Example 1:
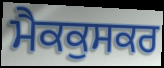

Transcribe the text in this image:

ਮੈਕਕੁਸਕਰ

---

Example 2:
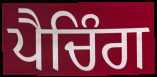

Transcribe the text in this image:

ਪੈਚਿੰਗ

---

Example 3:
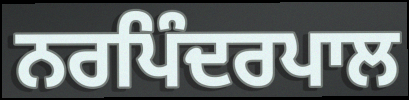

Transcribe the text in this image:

ਨਰਪਿੰਦਰਪਾਲ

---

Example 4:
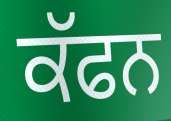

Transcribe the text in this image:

ਕੱਫਨ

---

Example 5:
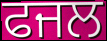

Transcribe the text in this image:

ਫਜਲ